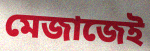
মেজাজেই